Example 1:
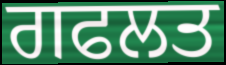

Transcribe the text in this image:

ਗਫਲਤ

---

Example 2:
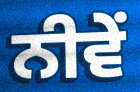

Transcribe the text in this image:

ਨੀਵੇਂ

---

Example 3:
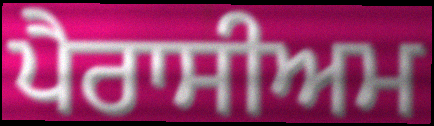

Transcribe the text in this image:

ਪੈਰਾਸੀਅਮ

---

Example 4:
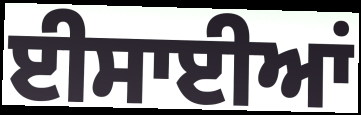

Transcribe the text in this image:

ਈਸਾਈਆਂ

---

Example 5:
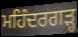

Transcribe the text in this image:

ਮਹਿੰਦਰਗੜ੍ਹ